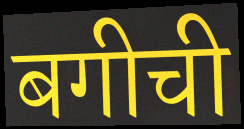
बगीची